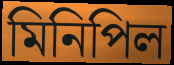
মিনিপিল